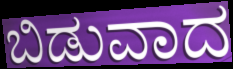
ಬಿಡುವಾದ